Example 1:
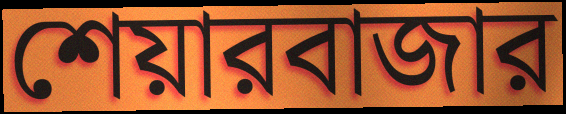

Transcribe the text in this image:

শেয়ারবাজার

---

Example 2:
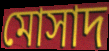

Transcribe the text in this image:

মোসাদ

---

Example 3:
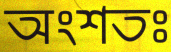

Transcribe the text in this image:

অংশতঃ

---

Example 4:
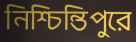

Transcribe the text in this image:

নিশ্চিন্তিপুরে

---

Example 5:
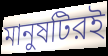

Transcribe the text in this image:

মানুষটিরই